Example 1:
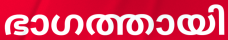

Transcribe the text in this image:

ഭാഗത്തായി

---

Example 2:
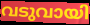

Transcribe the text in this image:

വടുവായി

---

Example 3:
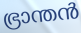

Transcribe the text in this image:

ഭ്രാന്തൻ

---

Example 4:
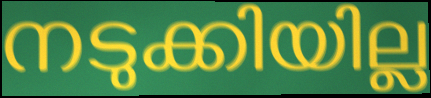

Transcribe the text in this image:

നടുക്കിയില്ല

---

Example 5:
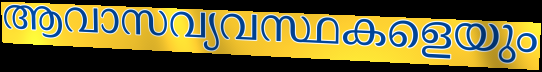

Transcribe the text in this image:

ആവാസവ്യവസ്ഥകളെയും